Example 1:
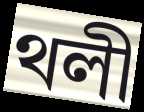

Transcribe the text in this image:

থলী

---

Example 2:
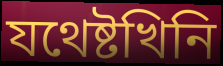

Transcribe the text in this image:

যথেষ্টখিনি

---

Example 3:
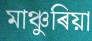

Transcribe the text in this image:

মাঞ্চুৰিয়া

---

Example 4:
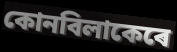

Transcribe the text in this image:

কোনবিলাকেৰে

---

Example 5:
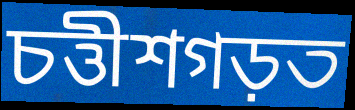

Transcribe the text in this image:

চত্তীশগড়ত